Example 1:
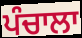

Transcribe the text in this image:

ਪੰਚਾਲਾ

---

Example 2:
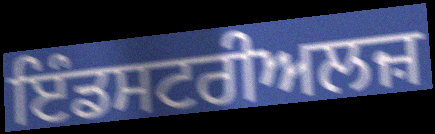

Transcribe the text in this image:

ਇੰਡਸਟਰੀਅਲਜ਼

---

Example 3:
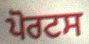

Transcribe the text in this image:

ਪੋਰਟਸ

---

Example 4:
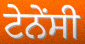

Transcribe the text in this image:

ਟੇਨੇਂਸੀ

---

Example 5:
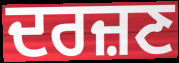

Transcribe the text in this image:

ਦਰਜ਼ਣ